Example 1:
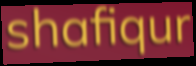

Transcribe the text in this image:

shafiqur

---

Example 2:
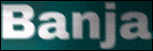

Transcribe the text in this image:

Banja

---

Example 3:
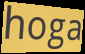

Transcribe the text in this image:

hoga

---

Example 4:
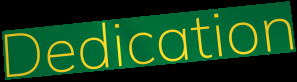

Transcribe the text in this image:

Dedication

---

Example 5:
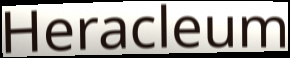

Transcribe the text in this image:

Heracleum